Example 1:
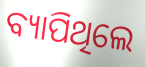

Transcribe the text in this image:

ବ୍ୟାପିଥିଲେ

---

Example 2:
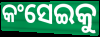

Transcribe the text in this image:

କଂସେଇକୁ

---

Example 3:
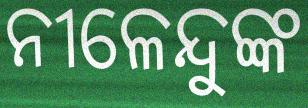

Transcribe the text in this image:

ନୀଳେନ୍ଦୁଙ୍କ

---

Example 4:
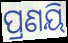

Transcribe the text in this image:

ପ୍ରଣୟି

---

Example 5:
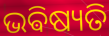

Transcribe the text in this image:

ଭଵିଷ୍ୟତି